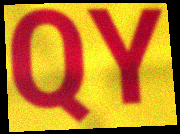
QY